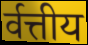
र्वत्तीय